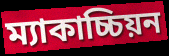
ম্যাকাচ্চিয়ন